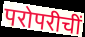
परोपरीचीं